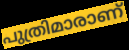
പുത്രിമാരാണ്